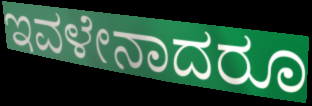
ಇವಳೇನಾದರೂ